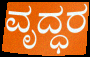
ವೃದ್ಧರ